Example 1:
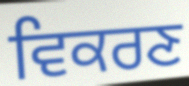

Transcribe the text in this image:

ਵਿਕਰਣ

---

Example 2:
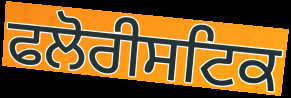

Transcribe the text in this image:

ਫਲੋਰੀਸਟਿਕ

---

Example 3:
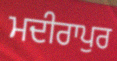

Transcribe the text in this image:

ਮਦੀਰਾਪੁਰ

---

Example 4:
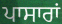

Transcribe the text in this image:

ਪਾਸਾਰਾਂ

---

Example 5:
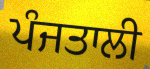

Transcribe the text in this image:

ਪੰਜਤਾਲੀ